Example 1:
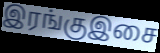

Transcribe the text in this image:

இரங்குஇசை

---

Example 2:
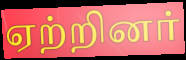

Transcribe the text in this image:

ஏற்றினர்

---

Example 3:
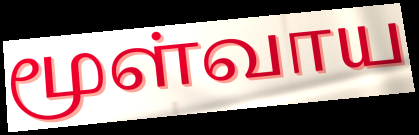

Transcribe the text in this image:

மூள்வாய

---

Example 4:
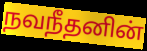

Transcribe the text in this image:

நவநீதனின்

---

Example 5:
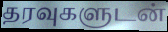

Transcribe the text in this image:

தரவுகளுடன்